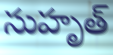
సుహృత్